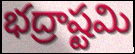
భద్రాష్టమి